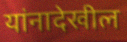
यांनादेखील